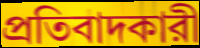
প্রতিবাদকারী